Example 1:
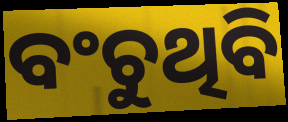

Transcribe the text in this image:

ବଂଚୁଥିବି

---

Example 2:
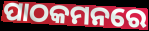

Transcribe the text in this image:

ପାଠକମନରେ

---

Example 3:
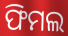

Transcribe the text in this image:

ଫିମଲ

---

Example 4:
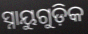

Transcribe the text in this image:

ସ୍ନାୟୁଗୁଡ଼ିକ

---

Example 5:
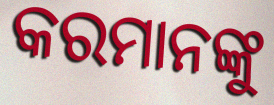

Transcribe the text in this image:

କରମାନଙ୍କୁ